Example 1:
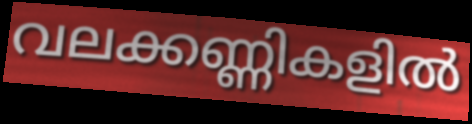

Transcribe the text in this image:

വലക്കണ്ണികളിൽ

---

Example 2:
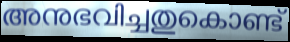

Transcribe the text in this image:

അനുഭവിച്ചതുകൊണ്ട്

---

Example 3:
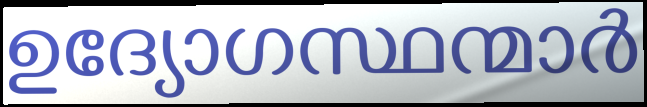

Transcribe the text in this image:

ഉദ്യോഗസ്ഥന്മാർ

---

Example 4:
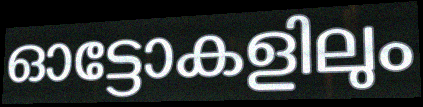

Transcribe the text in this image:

ഓട്ടോകളിലും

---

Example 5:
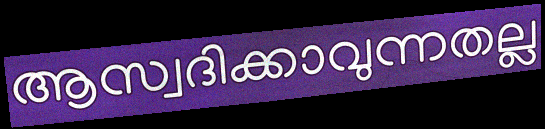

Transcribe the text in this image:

ആസ്വദിക്കാവുന്നതല്ല